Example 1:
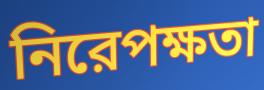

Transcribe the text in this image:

নিরেপক্ষতা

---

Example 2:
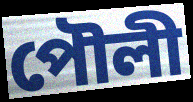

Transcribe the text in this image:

পৌলী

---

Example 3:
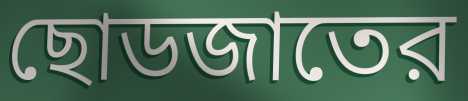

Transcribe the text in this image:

ছোডজাতের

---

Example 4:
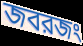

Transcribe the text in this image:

জবরজং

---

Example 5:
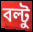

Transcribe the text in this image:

বল্টু